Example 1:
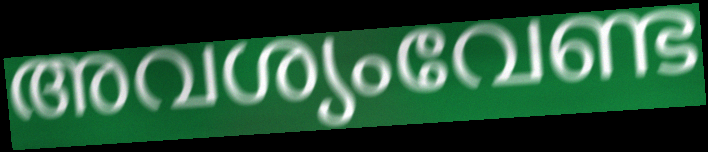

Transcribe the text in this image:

അവശ്യംവേണ്ട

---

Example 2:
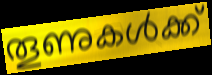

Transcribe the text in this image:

തൂണുകൾക്ക്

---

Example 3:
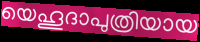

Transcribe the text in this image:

യെഹൂദാപുത്രിയായ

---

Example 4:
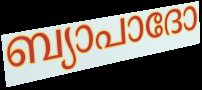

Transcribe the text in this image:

ബ്യാപാദോ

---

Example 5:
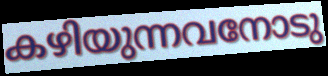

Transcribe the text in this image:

കഴിയുന്നവനോടു